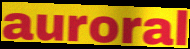
auroral